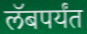
लॅबपर्यंत